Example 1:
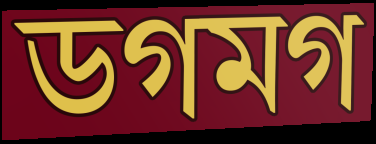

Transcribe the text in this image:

ডগমগ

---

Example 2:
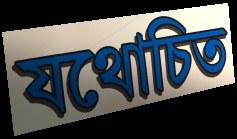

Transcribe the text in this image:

যথোচিত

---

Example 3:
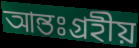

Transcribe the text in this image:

আন্তঃগ্রহীয়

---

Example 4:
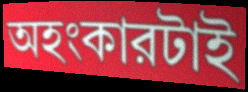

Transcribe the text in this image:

অহংকারটাই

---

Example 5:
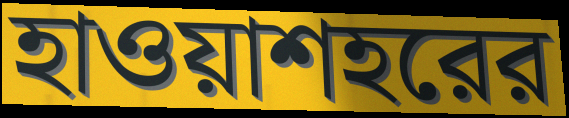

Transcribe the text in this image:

হাওয়াশহরের